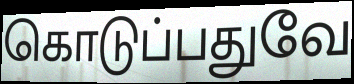
கொடுப்பதுவே